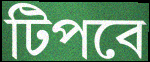
টিপবে